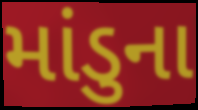
માંડુના